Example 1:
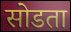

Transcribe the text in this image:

सोडता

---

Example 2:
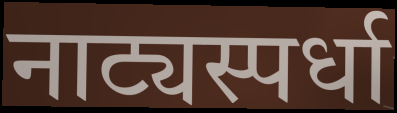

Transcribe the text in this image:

नाट्यस्पर्धा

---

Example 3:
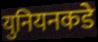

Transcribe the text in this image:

युनियनकडे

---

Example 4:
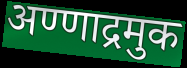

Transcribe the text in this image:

अण्णाद्रमुक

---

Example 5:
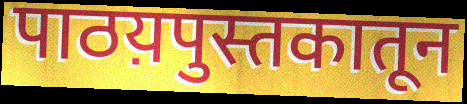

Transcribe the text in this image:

पाठय़पुस्तकातून